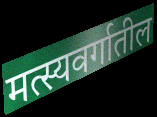
मत्स्यवर्गातील